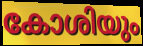
കോശിയും